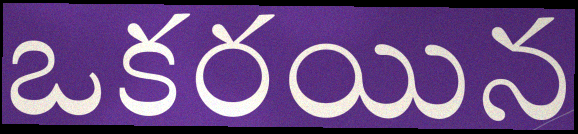
ఒకరయిన